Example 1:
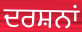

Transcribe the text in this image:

ਦਰਸ਼ਨਾਂ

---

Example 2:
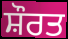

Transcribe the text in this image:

ਸ਼ੌਰਤ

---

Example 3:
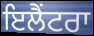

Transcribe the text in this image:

ਇਲੈਂਟਰਾ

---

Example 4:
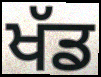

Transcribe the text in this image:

ਖੱਡ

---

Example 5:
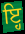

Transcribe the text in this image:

ਇ੍ਹ